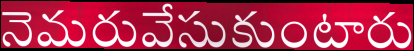
నెమరువేసుకుంటారు